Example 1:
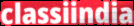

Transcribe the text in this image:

classiindia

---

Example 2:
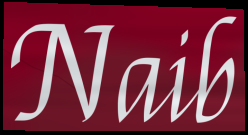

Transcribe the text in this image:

Naib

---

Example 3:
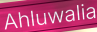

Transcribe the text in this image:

Ahluwalia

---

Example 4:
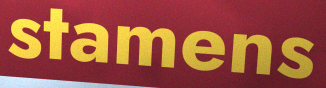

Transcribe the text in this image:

stamens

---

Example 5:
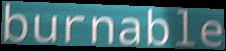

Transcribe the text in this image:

burnable